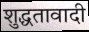
शुद्धतावादी